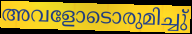
അവളോടൊരുമിച്ചു്